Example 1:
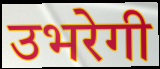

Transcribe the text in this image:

उभरेगी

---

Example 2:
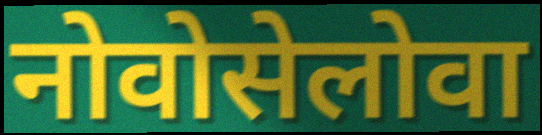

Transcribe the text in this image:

नोवोसेलोवा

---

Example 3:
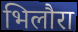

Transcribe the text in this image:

भिलौरा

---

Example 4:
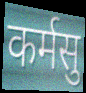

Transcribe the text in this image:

कर्मसु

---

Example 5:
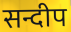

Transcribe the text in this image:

सन्दीप